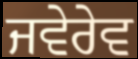
ਜਵੇਰੇਵ